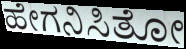
ಹೇಗನಿಸಿತೋ